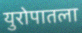
युरोपातला